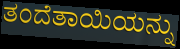
ತಂದೆತಾಯಿಯನ್ನು